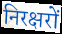
निरक्षरों